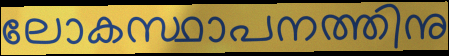
ലോകസ്ഥാപനത്തിനു